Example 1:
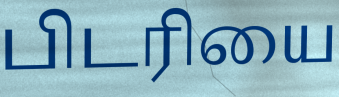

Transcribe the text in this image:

பிடரியை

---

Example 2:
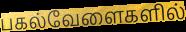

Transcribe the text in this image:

பகல்வேளைகளில்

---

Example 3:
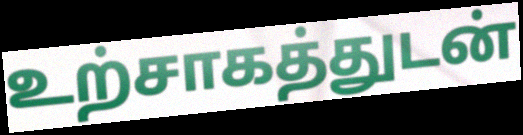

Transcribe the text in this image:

உற்சாகத்துடன்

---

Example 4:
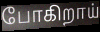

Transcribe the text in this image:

போகிறாய்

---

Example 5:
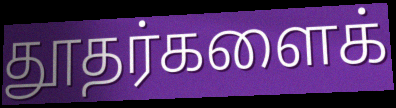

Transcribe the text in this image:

தூதர்களைக்